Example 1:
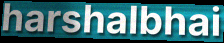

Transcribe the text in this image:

harshalbhai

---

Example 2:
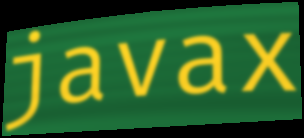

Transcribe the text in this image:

javax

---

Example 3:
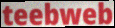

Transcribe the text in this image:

teebweb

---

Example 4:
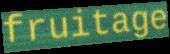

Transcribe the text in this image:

fruitage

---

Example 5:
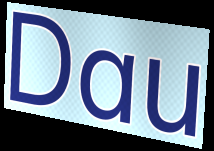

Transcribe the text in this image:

Dau